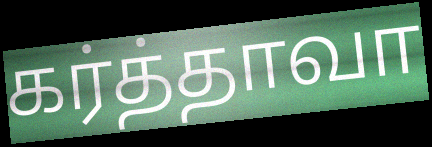
கர்த்தாவா